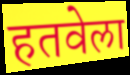
हतवेला